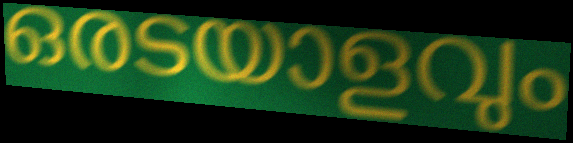
ഒരടയാളവും